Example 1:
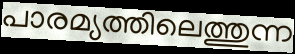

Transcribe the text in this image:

പാരമ്യത്തിലെത്തുന്ന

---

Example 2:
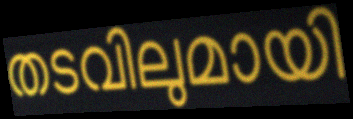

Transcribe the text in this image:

തടവിലുമായി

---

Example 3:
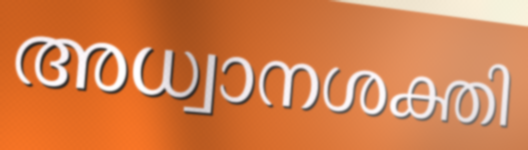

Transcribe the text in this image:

അധ്വാനശക്തി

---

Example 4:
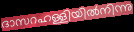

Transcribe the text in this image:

ദാസറഹള്ളിയിൽനിന്നു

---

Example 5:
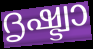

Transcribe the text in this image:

ദൃഷ്ട്വാ